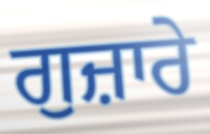
ਗੁਜ਼ਾਰੇ